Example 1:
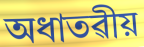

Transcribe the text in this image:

অধাতৱীয়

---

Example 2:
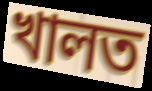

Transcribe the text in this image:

খালত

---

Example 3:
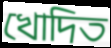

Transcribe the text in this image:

খোদিত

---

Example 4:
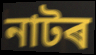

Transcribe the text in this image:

নাটৰ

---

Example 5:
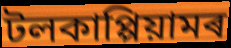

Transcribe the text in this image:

টলকাপ্পিয়ামৰ